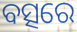
ବତ୍ସରେ